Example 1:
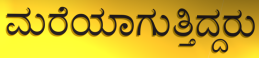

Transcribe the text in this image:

ಮರೆಯಾಗುತ್ತಿದ್ದರು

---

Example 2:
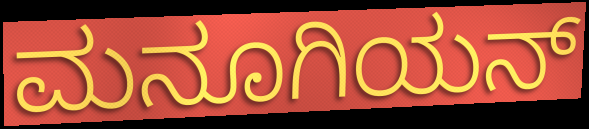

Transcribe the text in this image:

ಮನೂಗಿಯನ್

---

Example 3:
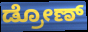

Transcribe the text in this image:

ಡ್ರೋಣ್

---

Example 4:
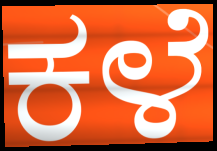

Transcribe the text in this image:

ಕಳೆ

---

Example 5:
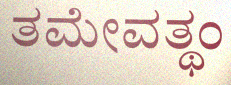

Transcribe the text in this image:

ತಮೇವತ್ಥಂ